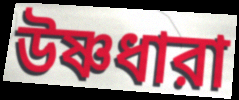
উষ্ণধারা